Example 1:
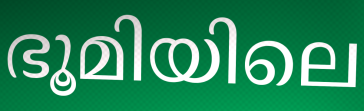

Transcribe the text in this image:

ഭൂമിയിലെ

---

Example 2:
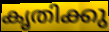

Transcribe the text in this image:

കൃതിക്കു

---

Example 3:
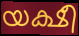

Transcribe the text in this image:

യക്ഷീ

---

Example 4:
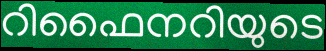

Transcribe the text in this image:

റിഫൈനറിയുടെ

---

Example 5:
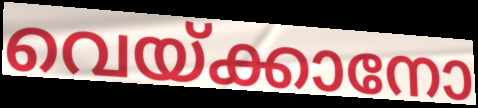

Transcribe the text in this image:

വെയ്ക്കാനോ